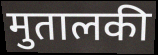
मुतालकी